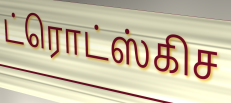
ட்ரொட்ஸ்கிச